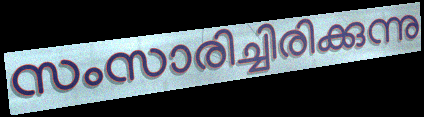
സംസാരിച്ചിരിക്കുന്നു